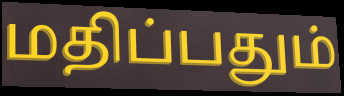
மதிப்பதும்